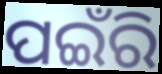
ପଇଁରି